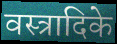
वस्त्रादिके